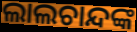
ଲାଲଚାନ୍ଦଙ୍କ